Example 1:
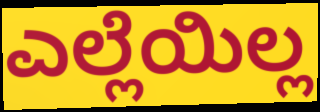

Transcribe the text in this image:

ಎಲ್ಲೆಯಿಲ್ಲ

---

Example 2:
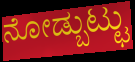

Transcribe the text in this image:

ನೋಡ್ಬುಟ್ಟು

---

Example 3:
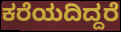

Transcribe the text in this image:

ಕರೆಯದಿದ್ದರೆ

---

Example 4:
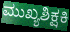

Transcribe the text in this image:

ಮುಖ್ಯಶಿಕ್ಷಕಿ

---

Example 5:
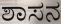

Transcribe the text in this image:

ಶಾಸನ